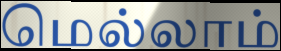
மெல்லாம்